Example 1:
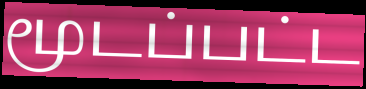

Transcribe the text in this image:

மூடப்பட்ட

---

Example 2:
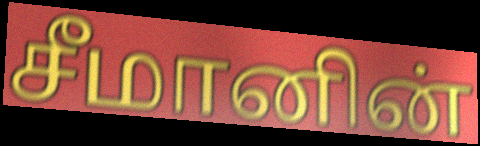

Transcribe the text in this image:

சீமானின்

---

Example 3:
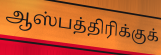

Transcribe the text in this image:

ஆஸ்பத்திரிக்குக்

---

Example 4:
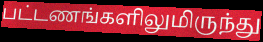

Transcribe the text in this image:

பட்டணங்களிலுமிருந்து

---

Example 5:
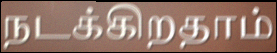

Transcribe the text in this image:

நடக்கிறதாம்